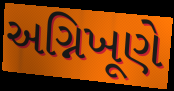
અગ્નિખૂણે